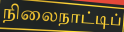
நிலைநாட்டிப்